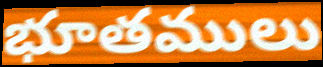
భూతములు